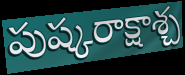
పుష్కరాక్షాశ్చ